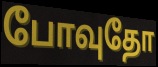
போவுதோ